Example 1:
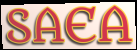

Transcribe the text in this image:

SAEA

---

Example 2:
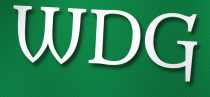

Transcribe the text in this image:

WDG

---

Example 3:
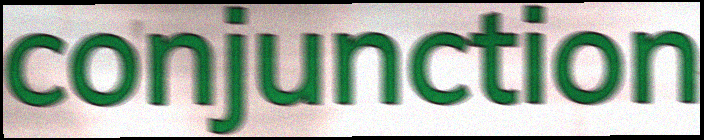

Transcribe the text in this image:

conjunction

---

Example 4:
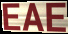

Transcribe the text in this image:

EAE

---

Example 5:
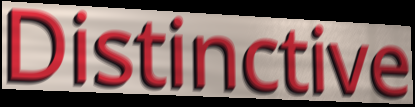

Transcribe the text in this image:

Distinctive